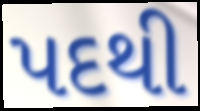
પદથી